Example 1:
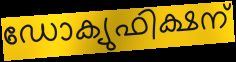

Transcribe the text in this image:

ഡോക്യുഫിക്ഷന്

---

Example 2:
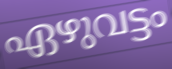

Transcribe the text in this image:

ഏഴുവട്ടം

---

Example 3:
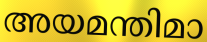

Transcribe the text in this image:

അയമന്തിമാ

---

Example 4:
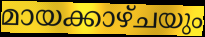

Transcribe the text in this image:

മായക്കാഴ്ചയും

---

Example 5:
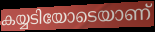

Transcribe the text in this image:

കയ്യടിയോടെയാണ്